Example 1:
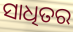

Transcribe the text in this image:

ସାଧିତର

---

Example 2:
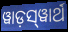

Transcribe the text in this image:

ୱାଡ଼ସ୍‌ୱାର୍ଥ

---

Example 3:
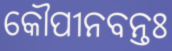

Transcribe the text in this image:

କୌପୀନବନ୍ତଃ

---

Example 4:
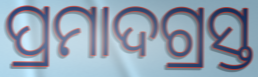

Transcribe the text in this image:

ପ୍ରମାଦଗ୍ରସ୍ତ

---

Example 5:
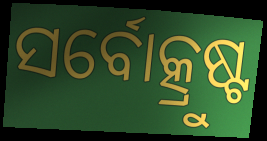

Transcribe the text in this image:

ସର୍ବୋତ୍କ୍ରୁଷ୍ଟ